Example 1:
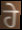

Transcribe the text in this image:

ਹੇ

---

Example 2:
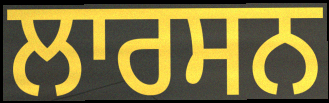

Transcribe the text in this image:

ਲਾਰਸਨ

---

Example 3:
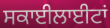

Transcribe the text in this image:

ਸਕਾਈਲਾਈਟਾਂ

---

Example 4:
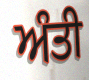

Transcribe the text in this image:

ਅੰਤੀ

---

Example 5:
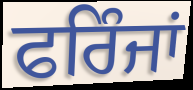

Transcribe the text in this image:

ਫਰਿੰਜਾਂ